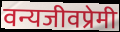
वन्यजीवप्रेमी